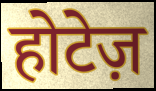
होटेज़